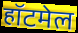
हॉटमेल